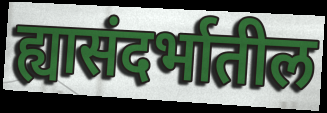
ह्यासंदर्भातील